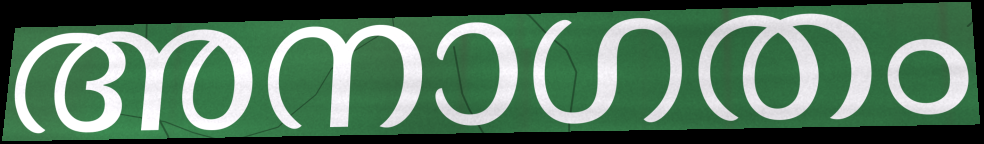
അനാഗതം